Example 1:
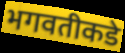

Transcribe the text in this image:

भगवतीकडे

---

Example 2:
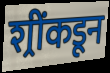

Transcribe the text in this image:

श्रींकडून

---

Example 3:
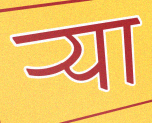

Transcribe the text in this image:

ऱ्या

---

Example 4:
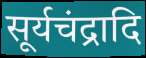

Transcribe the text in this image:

सूर्यचंद्रादि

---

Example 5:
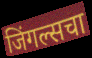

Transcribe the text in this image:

जिंगल्सचा